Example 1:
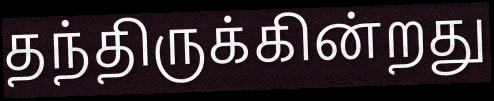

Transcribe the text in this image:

தந்திருக்கின்றது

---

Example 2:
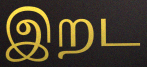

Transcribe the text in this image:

இறட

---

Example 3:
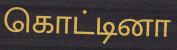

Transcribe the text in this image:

கொட்டினா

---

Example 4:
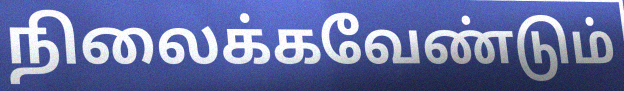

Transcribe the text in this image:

நிலைக்கவேண்டும்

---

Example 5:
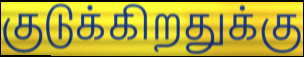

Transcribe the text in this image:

குடுக்கிறதுக்கு